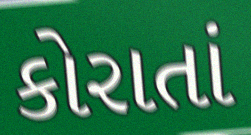
કોરાતાં